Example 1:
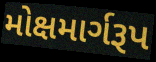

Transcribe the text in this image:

મોક્ષમાર્ગરૂપ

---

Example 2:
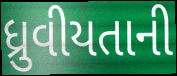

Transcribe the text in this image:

ધ્રુવીયતાની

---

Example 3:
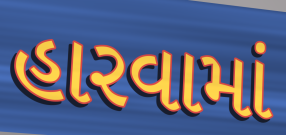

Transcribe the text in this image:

હારવામાં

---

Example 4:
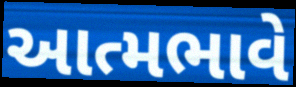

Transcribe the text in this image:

આત્મભાવે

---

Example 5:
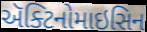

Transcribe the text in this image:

ઍક્ટિનોમાઇસિન